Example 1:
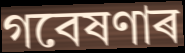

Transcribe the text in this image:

গবেষণাৰ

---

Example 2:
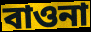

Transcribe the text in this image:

বাওনা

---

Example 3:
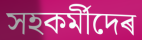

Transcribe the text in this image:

সহকৰ্মীদেৰ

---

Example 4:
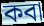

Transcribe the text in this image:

কবা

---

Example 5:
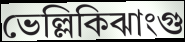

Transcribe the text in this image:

ভেল্লিকিঝাংগু